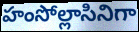
హంసోల్లాసినిగా